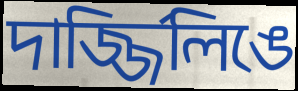
দার্জ্জিলিঙে